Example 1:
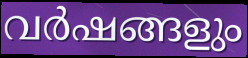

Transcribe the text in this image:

വർഷങ്ങളും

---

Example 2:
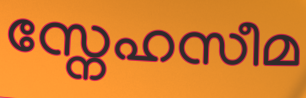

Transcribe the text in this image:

സ്നേഹസീമ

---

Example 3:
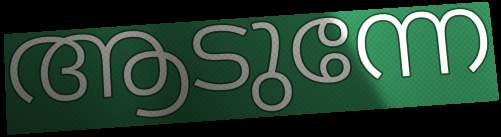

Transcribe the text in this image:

ആടുന്നേ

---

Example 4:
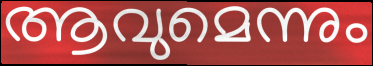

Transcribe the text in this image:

ആവുമെന്നും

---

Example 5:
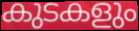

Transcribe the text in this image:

കുടകളും